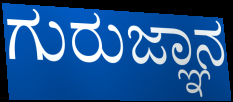
ಗುರುಜ್ಞಾನ